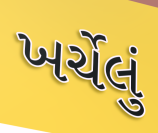
ખર્ચેલું